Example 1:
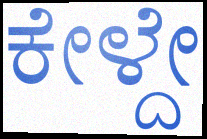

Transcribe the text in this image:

ಕೇಳ್ದೇ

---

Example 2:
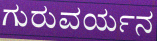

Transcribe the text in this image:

ಗುರುವರ್ಯನ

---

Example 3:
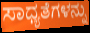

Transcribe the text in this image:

ಸಾಧ್ಯತೆಗಳನ್ನು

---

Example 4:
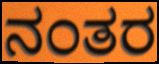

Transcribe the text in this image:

ನಂತರ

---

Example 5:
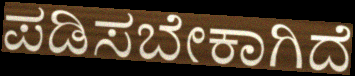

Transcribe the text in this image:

ಪಡಿಸಬೇಕಾಗಿದೆ